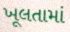
ખૂલતામાં